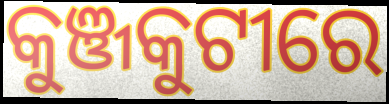
କୁଞ୍ଜକୁଟୀରେ